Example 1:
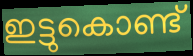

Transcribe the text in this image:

ഇട്ടുകൊണ്ട്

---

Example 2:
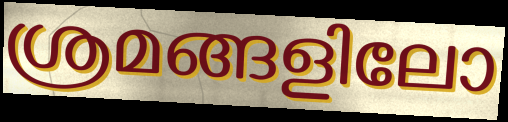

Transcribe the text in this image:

ശ്രമങ്ങളിലോ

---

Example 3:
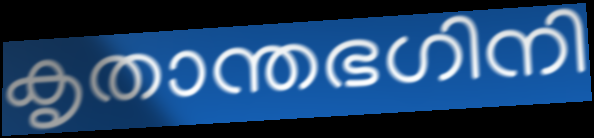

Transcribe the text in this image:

കൃതാന്തഭഗിനി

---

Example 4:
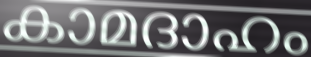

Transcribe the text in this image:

കാമദാഹം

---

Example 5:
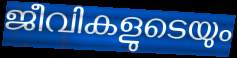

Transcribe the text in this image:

ജീവികളുടെയും